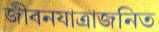
জীবনযাত্রাজনিত